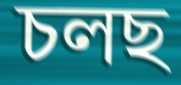
চলছ